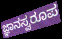
ಜ್ಞಾನಸ್ವರೂಪ